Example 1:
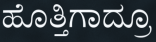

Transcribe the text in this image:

ಹೊತ್ತಿಗಾದ್ರೂ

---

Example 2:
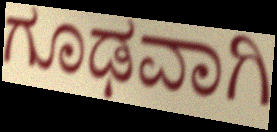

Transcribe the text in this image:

ಗೂಢವಾಗಿ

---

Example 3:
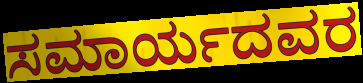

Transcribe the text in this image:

ಸಮಾರ್ಯದವರ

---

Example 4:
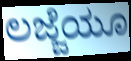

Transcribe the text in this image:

ಲಜ್ಜೆಯೂ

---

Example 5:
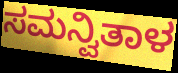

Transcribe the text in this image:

ಸಮನ್ವಿತಾಳ